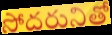
సోదరునితో